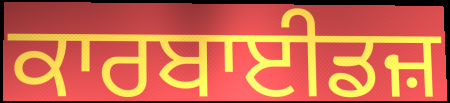
ਕਾਰਬਾਈਡਜ਼